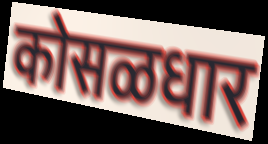
कोसळधार